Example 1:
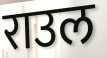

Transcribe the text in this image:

राउल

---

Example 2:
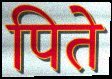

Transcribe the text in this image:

पिते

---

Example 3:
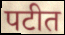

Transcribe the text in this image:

पटीत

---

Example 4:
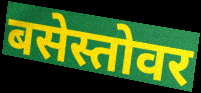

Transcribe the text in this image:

बसेस्तोवर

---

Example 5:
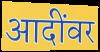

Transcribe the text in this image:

आदींवर